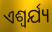
ଏଶ୍ଵର୍ଯ୍ୟ